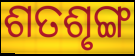
ଶତଶୃଙ୍ଗ